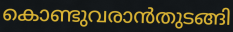
കൊണ്ടുവരാൻതുടങ്ങി